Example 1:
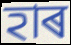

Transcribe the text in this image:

হাৰ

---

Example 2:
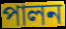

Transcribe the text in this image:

পালন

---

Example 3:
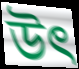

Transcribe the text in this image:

উৎ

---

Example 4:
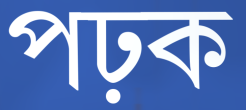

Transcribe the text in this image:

পঢ়ক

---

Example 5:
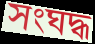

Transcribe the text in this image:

সংঘদ্ধ